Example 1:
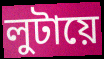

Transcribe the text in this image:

লুটায়ে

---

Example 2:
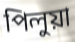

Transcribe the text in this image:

পিলুয়া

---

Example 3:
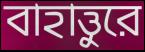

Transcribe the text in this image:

বাহাত্তুরে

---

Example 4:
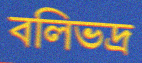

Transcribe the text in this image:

বলিভদ্র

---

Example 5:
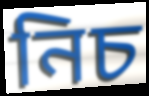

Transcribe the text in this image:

নিচ